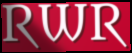
RWR